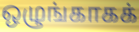
ஒழுங்காகக்